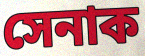
সেনাক